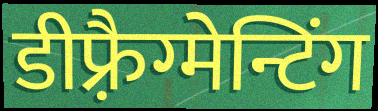
डीफ़्रैग्मेन्टिंग